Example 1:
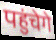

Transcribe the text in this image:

पहुंचेगे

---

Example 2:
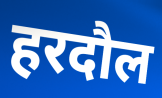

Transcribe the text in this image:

हरदौल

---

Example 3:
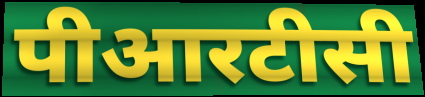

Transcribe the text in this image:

पीआरटीसी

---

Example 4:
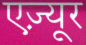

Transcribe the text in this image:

एज़्यूर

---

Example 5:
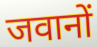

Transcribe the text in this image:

जवानों